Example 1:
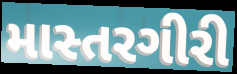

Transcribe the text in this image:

માસ્તરગીરી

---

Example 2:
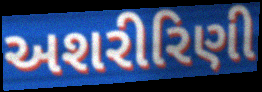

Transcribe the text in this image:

અશરીરિણી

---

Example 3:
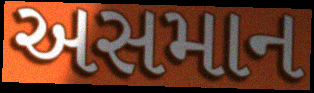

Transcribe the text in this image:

અસમાન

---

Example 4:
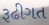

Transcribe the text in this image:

રૂઢીગત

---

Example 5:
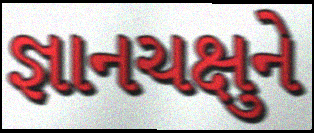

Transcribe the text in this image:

જ્ઞાનચક્ષુને